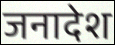
जनादेश